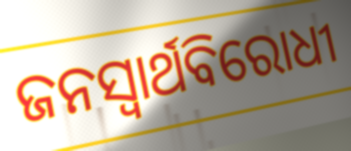
ଜନସ୍ଵାର୍ଥବିରୋଧୀ